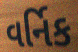
વર્નિક